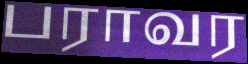
பராவர